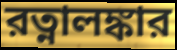
রত্নালঙ্কার